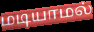
மடியாமல்